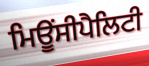
ਮਿਊਂਸੀਪੈਲਿਟੀ